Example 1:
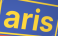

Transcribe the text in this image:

aris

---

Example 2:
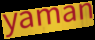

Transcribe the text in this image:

yaman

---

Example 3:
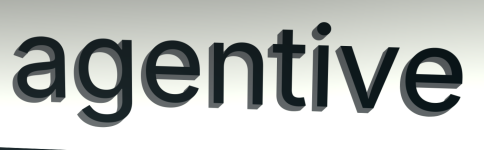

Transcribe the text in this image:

agentive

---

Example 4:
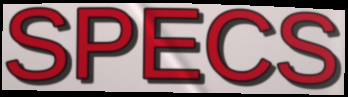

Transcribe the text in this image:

SPECS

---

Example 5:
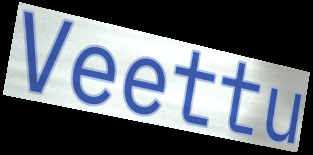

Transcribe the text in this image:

Veettu